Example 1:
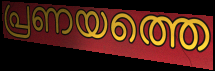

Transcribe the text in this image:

പ്രണയത്തെ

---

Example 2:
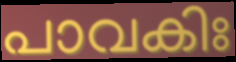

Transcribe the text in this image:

പാവകിഃ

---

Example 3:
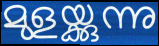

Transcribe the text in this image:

മുളയ്ക്കുന്നു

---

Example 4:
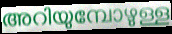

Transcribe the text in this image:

അറിയുമ്പോഴുള്ള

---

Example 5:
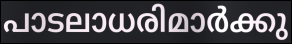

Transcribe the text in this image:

പാടലാധരിമാർക്കു